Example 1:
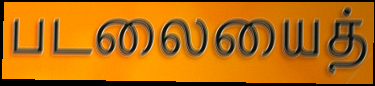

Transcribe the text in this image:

படலையைத்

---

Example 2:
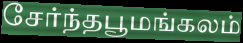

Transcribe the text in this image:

சேர்ந்தபூமங்கலம்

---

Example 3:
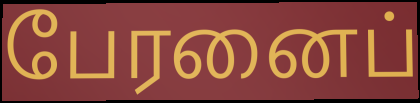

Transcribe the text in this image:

பேரனைப்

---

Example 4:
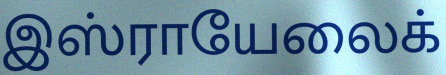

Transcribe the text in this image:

இஸ்ராயேலைக்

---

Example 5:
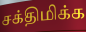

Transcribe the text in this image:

சக்திமிக்க